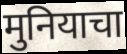
मुनियाचा